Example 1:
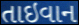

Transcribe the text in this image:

તાઇવાન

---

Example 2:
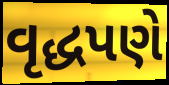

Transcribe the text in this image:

વૃદ્ધપણે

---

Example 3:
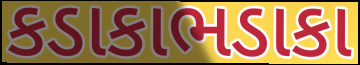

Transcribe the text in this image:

કડાકાભડાકા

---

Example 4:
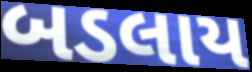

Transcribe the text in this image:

બડલાય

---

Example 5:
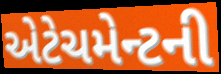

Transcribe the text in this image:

એટેચમેન્ટની